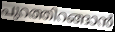
പുറത്തിറങ്ങാൻ